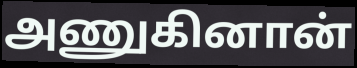
அணுகினான்